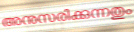
അനുസരിക്കുന്നതും